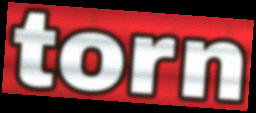
torn